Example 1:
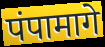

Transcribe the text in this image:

पंपामागे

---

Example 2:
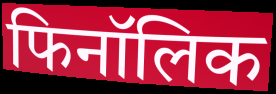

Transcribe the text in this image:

फिनॉलिक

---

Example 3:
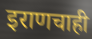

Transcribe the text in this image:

इराणचाही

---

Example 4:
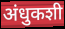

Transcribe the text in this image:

अंधुकशी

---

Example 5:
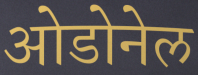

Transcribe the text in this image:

ओडोनेल